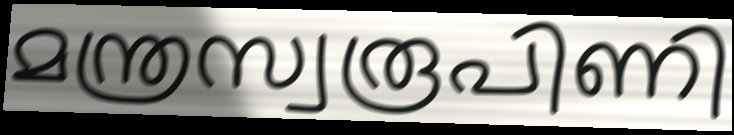
മന്ത്രസ്വരൂപിണി